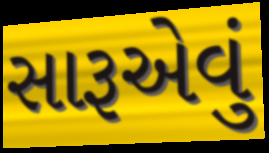
સારૂએવું